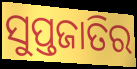
ସୁପ୍ତଜାତିର